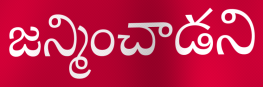
జన్మించాడని